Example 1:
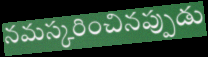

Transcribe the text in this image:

నమస్కరించినప్పుడు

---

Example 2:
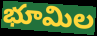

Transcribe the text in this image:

భూమిల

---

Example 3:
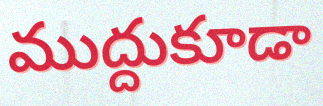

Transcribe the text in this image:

ముద్దుకూడా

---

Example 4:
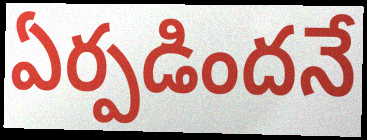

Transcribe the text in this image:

ఏర్పడిందనే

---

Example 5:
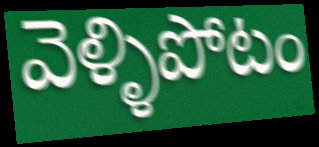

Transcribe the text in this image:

వెళ్ళిపోటం